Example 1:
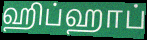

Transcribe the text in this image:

ஹிப்ஹாப்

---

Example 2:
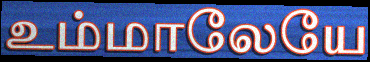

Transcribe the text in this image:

உம்மாலேயே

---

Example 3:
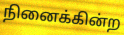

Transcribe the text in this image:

நினைக்கின்ற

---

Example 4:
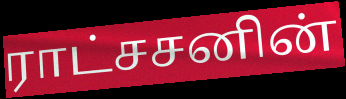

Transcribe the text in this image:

ராட்சசனின்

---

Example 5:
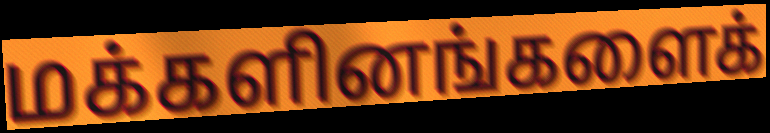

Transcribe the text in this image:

மக்களினங்களைக்